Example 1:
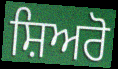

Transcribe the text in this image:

ਸ਼ਿਅਰੋ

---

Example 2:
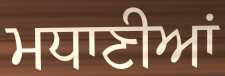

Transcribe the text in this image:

ਮਧਾਣੀਆਂ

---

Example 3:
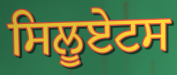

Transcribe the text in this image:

ਸਿਲੂਏਟਸ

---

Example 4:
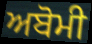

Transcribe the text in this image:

ਅਬੋਮੀ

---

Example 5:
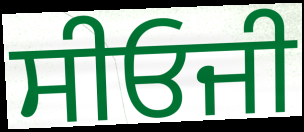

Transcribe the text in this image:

ਸੀਓਜੀ